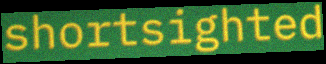
shortsighted